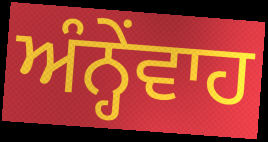
ਅੰਨ੍ਹੇਂਵਾਹ